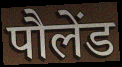
पौलेंड